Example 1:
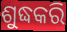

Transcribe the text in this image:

ଶୁଦ୍ଧକରି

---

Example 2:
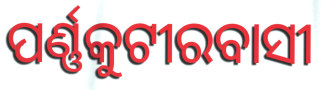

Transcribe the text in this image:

ପର୍ଣ୍ଣକୁଟୀରବାସୀ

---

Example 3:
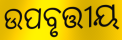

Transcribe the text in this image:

ଉପବୃତ୍ତୀୟ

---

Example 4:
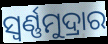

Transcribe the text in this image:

ସ୍ୱର୍ଣ୍ଣମୁଦ୍ରାର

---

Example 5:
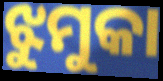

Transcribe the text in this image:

ଝୁମୁକା